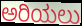
ಅರಿಯಲು